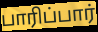
பாரிப்பார்